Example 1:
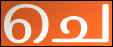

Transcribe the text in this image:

ചെ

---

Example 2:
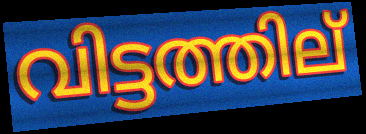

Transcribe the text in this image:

വിട്ടത്തില്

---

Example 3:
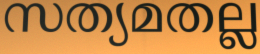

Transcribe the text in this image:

സത്യമതല്ല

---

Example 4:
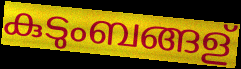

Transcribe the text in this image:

കുടുംബങ്ങള്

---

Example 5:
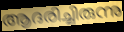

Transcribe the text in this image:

ആദരിച്ചിരുന്നു